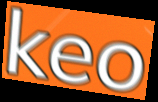
keo